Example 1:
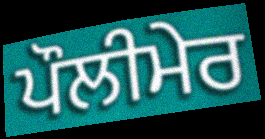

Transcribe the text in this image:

ਪੌਲੀਮੇਰ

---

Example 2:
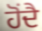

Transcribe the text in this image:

ਹੋਂਦੈ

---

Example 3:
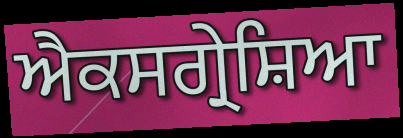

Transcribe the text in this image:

ਐਕਸਗ੍ਰੇਸ਼ਿਆ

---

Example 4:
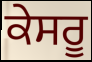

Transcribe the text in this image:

ਕੇਸਰੂ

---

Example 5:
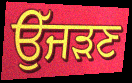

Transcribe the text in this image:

ਉੱਜੜਣ